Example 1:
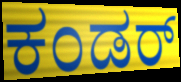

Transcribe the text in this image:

ಕಂಡರ್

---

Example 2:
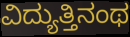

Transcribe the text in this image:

ವಿದ್ಯುತ್ತಿನಂಥ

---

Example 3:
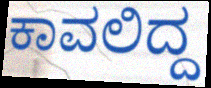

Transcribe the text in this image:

ಕಾವಲಿದ್ದ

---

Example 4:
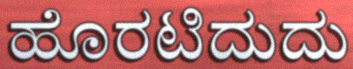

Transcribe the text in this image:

ಹೊರಟಿದುದು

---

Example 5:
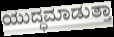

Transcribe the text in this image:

ಯುದ್ಧಮಾಡುತ್ತಾ